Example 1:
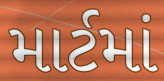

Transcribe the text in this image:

માર્ટમાં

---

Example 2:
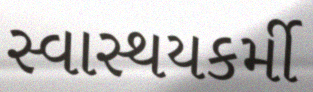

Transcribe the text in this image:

સ્વાસ્થયકર્મી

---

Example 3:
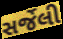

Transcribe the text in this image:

સર્જેલી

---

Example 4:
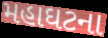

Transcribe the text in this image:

મહાઘટના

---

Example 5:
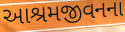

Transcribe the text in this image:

આશ્રમજીવનના